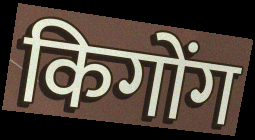
किगोंग